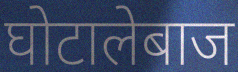
घोटालेबाज